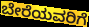
ಬೇರೆಯವರಿಗೆ